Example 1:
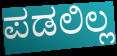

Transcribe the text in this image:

ಪಡಲಿಲ್ಲ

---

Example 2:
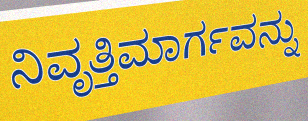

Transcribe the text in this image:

ನಿವೃತ್ತಿಮಾರ್ಗವನ್ನು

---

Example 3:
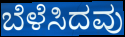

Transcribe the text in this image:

ಬೆಳೆಸಿದವು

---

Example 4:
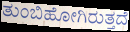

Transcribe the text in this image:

ತುಂಬಿಹೋಗಿರುತ್ತದೆ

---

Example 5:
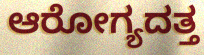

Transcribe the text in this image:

ಆರೋಗ್ಯದತ್ತ